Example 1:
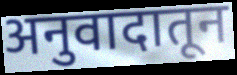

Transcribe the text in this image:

अनुवादातून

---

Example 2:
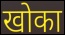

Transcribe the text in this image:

खोका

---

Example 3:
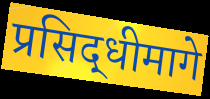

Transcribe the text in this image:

प्रसिद्धीमागे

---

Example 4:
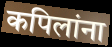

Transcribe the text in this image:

कपिलांना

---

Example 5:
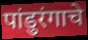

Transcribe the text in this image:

पांडुरंगाचे